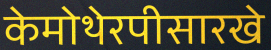
केमोथेरपीसारखे